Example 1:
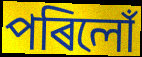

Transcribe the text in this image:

পৰিলোঁ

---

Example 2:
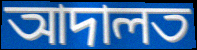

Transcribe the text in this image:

আদালত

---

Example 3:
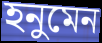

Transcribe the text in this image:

হনুমেন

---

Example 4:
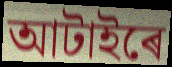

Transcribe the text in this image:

আটাইৰে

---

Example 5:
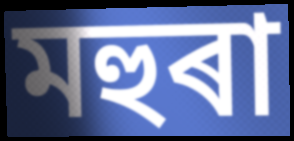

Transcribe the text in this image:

মহুৰা